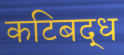
कटिबद्ध